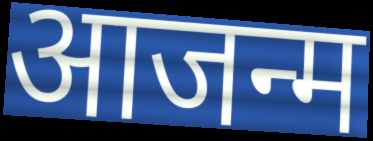
आजन्म